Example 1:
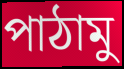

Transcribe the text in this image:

পাঠামু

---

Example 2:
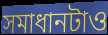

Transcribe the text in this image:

সমাধানটাও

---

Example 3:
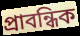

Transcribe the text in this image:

প্রাবন্ধিক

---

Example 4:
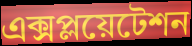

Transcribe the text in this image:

এক্সপ্লয়েটেশন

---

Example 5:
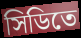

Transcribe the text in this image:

সিডিতে